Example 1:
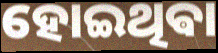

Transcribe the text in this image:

ହୋଇଥିଵା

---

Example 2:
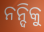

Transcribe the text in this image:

ନନ୍ଦିକୁ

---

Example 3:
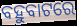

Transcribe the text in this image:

ବହୁବାଟରେ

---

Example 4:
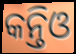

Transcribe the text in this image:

କନ୍ତିଓ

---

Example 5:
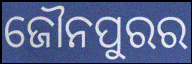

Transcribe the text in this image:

ଜୌନପୁରର